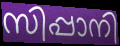
സിപ്പാനി